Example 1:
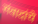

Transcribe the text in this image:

संवादांचे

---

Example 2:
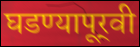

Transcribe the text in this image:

घडण्यापूर्वी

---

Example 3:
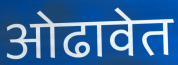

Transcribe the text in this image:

ओढावेत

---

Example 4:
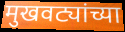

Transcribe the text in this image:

मुखवट्यांच्या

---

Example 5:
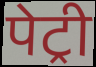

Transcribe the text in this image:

पेट्री